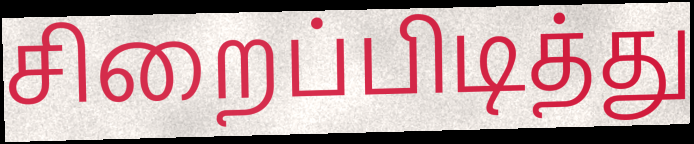
சிறைப்பிடித்து